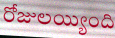
రోజులయ్యింది